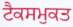
ਟੈਕਸਮੁਕਤ